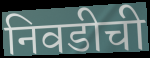
निवडीची